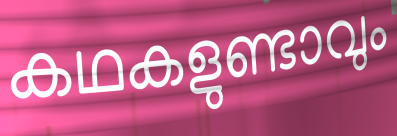
കഥകളുണ്ടാവും